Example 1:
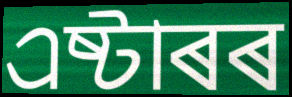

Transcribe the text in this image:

এষ্টাৰৰ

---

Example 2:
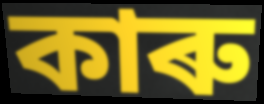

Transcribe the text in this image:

কাৰু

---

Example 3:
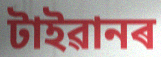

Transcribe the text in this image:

টাইৱানৰ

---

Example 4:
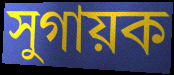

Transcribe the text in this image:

সুগায়ক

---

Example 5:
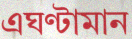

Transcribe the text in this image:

এঘণ্টামান